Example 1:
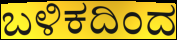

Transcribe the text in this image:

ಬಳಿಕದಿಂದ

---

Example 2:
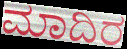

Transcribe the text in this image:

ಮಾದಿರ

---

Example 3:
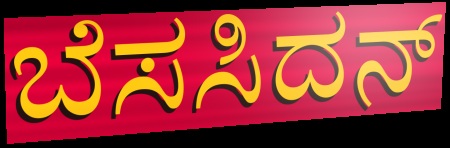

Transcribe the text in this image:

ಬೆಸಸಿದನ್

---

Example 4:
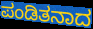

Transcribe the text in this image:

ಪಂಡಿತನಾದ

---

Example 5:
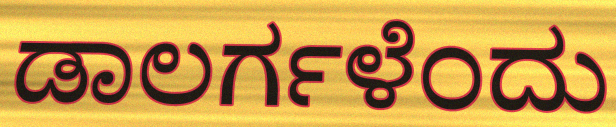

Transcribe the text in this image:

ಡಾಲರ್ಗಳೆಂದು